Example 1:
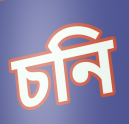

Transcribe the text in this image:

চনি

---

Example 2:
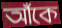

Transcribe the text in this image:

আঁকে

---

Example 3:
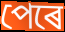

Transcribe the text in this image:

পেৰে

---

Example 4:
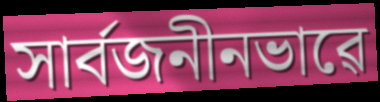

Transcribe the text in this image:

সাৰ্বজনীনভাৱে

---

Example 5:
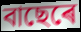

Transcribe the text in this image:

বাছেৰে